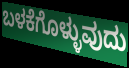
ಬಳಕೆಗೊಳ್ಳುವುದು